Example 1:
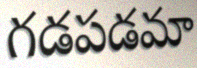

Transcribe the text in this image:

గడపడమా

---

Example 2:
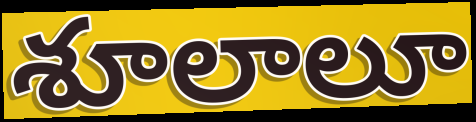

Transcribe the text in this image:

శూలాలూ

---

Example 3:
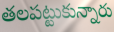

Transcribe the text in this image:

తలపట్టుకున్నారు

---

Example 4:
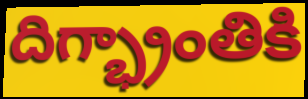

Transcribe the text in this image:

దిగ్భ్రాంతికి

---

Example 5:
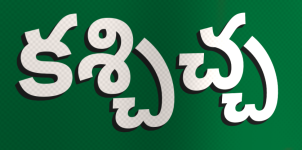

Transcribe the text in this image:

కశ్చిచ్చ